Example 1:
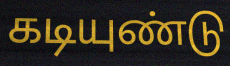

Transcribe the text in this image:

கடியுண்டு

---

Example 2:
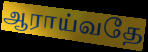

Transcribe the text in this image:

ஆராய்வதே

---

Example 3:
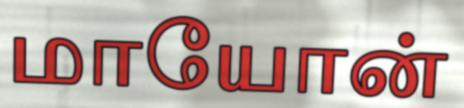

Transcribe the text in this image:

மாயோன்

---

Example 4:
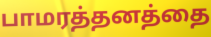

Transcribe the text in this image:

பாமரத்தனத்தை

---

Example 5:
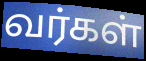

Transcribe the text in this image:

வர்கள்